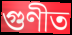
গুণীত